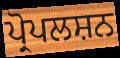
ਪ੍ਰੋਪਲਸ਼ਨ